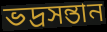
ভদ্রসন্তান